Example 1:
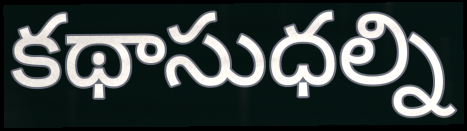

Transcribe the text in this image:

కథాసుధల్ని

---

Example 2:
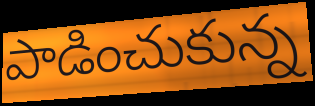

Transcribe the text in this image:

పాడించుకున్న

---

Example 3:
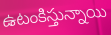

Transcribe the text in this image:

ఉటంకిస్తున్నాయి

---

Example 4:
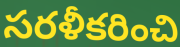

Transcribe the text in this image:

సరళీకరించి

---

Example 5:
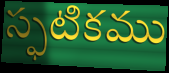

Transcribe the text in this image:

స్ఫటికము